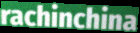
rachinchina